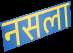
नसला